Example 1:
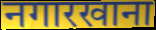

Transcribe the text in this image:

नगारखाना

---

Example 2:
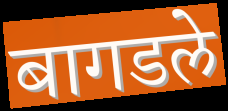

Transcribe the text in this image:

बागडले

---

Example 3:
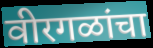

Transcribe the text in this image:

वीरगळांचा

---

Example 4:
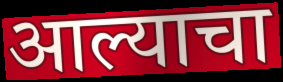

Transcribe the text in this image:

आल्‍याचा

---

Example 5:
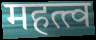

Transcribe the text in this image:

महत्‍त्‍व